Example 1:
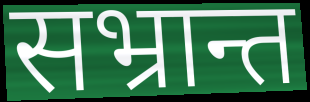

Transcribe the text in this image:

सभ्रान्त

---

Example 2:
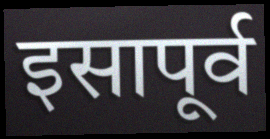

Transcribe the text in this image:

इसापूर्व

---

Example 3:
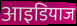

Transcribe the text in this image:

आइडियाज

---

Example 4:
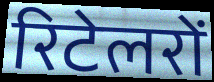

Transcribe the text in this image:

रिटेलरों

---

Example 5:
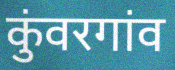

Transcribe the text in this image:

कुंवरगांव